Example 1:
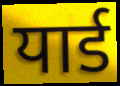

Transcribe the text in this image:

यार्ड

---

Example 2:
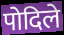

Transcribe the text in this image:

पोदिले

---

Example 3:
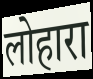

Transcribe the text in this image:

लोहारा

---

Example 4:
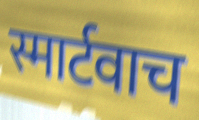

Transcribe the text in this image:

स्मार्टवाच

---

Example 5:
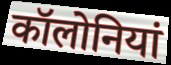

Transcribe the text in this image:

कॉलोनियां